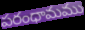
పరంధామము